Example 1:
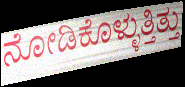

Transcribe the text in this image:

ನೋಡಿಕೊಳ್ಳುತ್ತಿತ್ತು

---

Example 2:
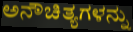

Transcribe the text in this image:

ಅನೌಚಿತ್ಯಗಳನ್ನು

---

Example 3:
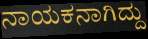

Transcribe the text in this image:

ನಾಯಕನಾಗಿದ್ದು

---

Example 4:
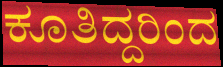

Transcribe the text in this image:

ಕೂತಿದ್ದರಿಂದ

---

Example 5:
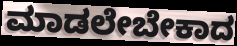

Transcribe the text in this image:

ಮಾಡಲೇಬೇಕಾದ